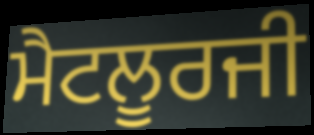
ਮੈਟਲੂਰਜੀ